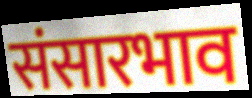
संसारभाव